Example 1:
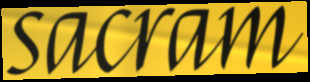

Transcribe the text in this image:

sacram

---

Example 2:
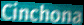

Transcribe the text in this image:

Cinchona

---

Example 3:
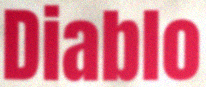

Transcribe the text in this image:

Diablo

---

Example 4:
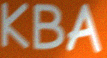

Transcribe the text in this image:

KBA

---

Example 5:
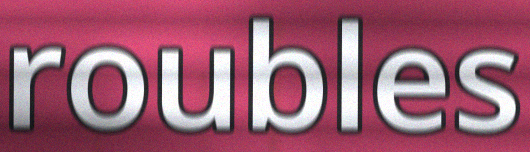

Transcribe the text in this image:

roubles